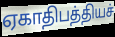
ஏகாதிபத்தியச்